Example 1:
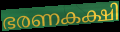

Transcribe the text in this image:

ഭരണകക്ഷി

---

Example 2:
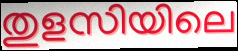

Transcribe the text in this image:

തുളസിയിലെ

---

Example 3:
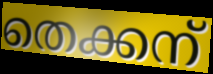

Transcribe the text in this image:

തെക്കന്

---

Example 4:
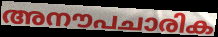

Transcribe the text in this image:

അനൗപചാരിക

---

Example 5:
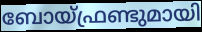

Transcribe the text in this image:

ബോയ്ഫ്രണ്ടുമായി